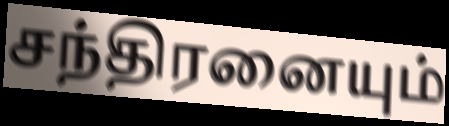
சந்திரனையும்